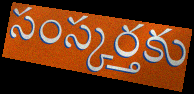
సంస్కర్తకు